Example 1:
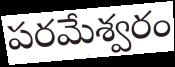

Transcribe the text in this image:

పరమేశ్వరం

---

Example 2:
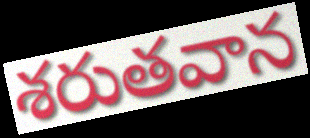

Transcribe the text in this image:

శరుతవాన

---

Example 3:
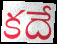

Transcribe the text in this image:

కదే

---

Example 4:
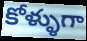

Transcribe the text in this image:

కోళ్ళుగా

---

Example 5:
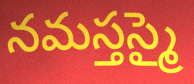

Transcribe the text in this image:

నమస్తస్మై